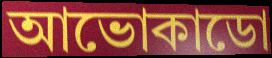
আভোকাডো